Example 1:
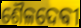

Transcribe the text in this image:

ଶୈଳଦେବୀ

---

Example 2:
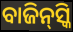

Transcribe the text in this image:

ବାଜିନ୍‌ସ୍କି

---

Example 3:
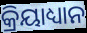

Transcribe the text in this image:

କ୍ରିୟାଧ୍ୟାନ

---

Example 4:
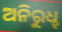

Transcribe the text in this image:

ଅନିରୁଧ୍ହ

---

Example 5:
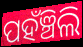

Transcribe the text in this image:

ପହଁଞ୍ଚିଲି